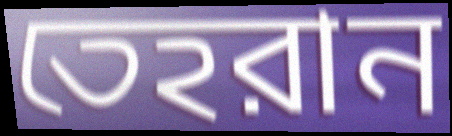
তেহরান